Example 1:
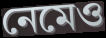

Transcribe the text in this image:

নেমেও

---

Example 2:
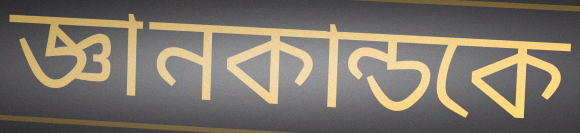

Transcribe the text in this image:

জ্ঞানকান্ডকে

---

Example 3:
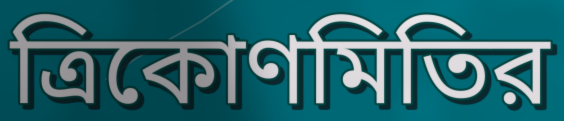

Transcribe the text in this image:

ত্রিকোণমিতির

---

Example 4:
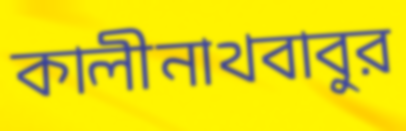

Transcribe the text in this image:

কালীনাথবাবুর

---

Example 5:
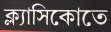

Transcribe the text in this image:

ক্ল্যাসিকোতে